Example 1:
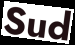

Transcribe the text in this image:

Sud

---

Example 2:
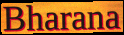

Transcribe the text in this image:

Bharana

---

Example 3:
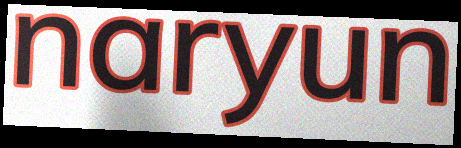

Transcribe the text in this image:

naryun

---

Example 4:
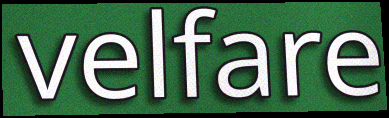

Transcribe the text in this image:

velfare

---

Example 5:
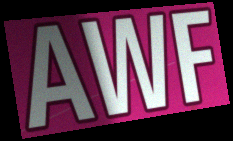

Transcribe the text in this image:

AWF